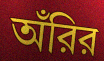
অঁরির